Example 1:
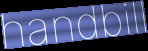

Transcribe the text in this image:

handbill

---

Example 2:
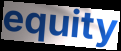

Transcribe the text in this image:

equity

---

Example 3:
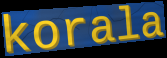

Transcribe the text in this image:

korala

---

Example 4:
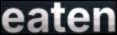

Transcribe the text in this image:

eaten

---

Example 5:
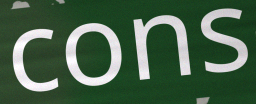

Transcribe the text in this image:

cons